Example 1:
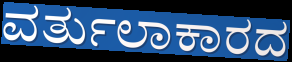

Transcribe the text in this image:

ವರ್ತುಲಾಕಾರದ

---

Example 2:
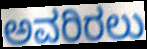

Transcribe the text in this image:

ಅವರಿರಲು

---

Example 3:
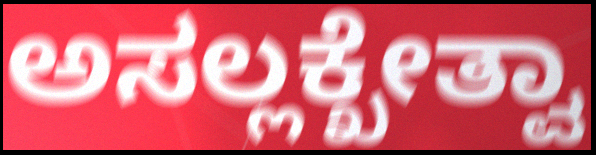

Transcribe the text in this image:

ಅಸಲ್ಲಕ್ಖೇತ್ವಾ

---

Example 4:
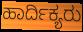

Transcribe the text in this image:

ಹಾರ್ದಿಕ್ಯರು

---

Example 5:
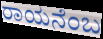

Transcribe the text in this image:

ರಾಯನೆಂಬ